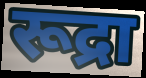
रूद्रा